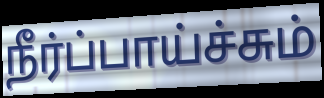
நீர்ப்பாய்ச்சும்